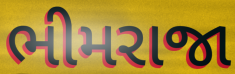
ભીમરાજા